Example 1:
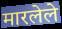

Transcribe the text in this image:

मारलेले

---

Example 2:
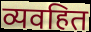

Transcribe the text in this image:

व्यवहित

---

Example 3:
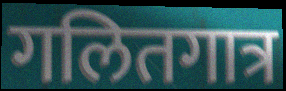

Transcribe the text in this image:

गलितगात्र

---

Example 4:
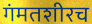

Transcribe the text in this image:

गंमतशीरच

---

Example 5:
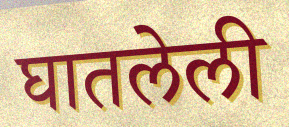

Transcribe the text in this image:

घातलेली